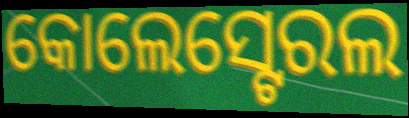
କୋଲେସ୍ଟେରଲ